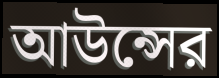
আউন্সের